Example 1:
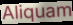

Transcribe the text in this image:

Aliquam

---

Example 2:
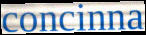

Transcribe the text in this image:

concinna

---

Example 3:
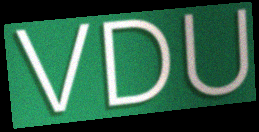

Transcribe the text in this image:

VDU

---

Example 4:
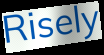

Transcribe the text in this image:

Risely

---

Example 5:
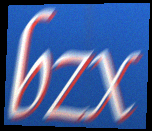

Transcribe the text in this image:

bzx